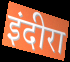
इंदीरा